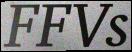
FFVs